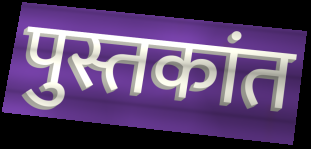
पुस्तकांत